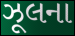
ઝૂલના